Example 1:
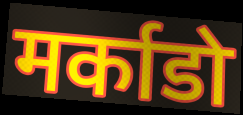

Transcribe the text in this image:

मर्काडो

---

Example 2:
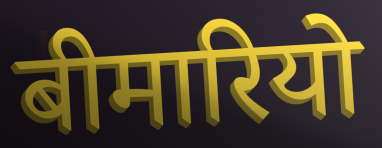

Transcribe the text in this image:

बीमारियो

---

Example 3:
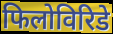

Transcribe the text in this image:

फिलोविरिडे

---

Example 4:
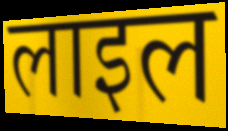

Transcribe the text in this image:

लाइल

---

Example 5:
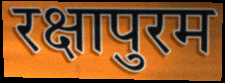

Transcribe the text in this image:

रक्षापुरम